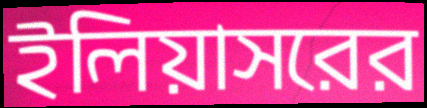
ইলিয়াসরের